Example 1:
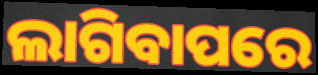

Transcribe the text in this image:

ଲାଗିବାପରେ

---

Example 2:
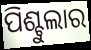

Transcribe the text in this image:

ପିଶ୍ଚୁଲାର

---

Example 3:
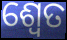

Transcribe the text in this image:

ଶ୍ଵେତ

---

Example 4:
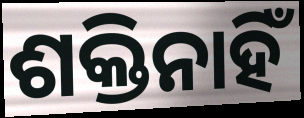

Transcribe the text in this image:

ଶକ୍ତିନାହିଁ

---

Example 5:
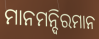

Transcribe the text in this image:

ମାନମନ୍ଦିରମାନ